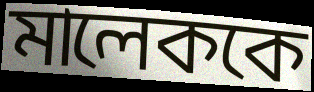
মালেককে